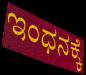
ಇಂಧನಕ್ಕೆ